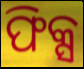
ଫିକ୍ସ